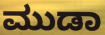
ಮುಡಾ